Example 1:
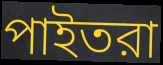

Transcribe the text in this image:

পাইতরা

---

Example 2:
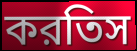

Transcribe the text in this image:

করতিস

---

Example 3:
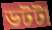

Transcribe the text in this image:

ডটটা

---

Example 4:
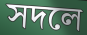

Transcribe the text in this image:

সদলে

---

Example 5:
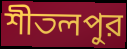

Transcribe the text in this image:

শীতলপুর